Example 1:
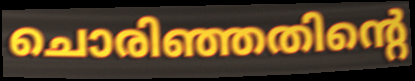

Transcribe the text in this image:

ചൊരിഞ്ഞതിന്റെ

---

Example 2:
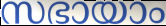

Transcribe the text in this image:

സഭായാം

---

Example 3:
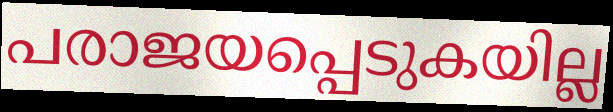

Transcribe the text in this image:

പരാജയപ്പെടുകയില്ല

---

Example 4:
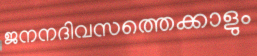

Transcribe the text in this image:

ജനനദിവസത്തെക്കാളും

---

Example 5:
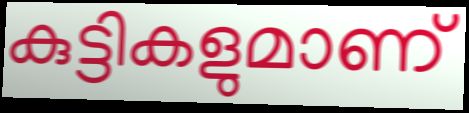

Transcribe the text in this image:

കുട്ടികളുമാണ്